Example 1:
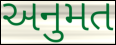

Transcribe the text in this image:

અનુમત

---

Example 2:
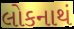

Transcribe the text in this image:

લોકનાથં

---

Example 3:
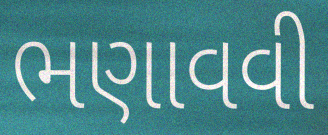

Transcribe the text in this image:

ભણાવવી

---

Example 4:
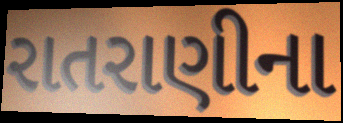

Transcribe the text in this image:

રાતરાણીના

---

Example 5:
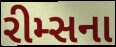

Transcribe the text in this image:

રીમ્સના